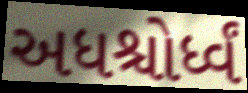
અધશ્ચોર્ધ્વં